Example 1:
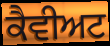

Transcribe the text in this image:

ਕੈਵੀਅਟ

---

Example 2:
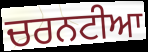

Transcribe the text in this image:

ਚਰਨਟੀਆ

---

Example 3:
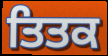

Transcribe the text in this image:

ਤਿਤਕ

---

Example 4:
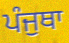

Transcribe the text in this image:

ਪੰਜੁਥਾ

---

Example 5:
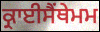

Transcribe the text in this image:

ਕ੍ਰਾਈਸੈਂਥੇਮਮ